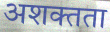
अशक्‍तता